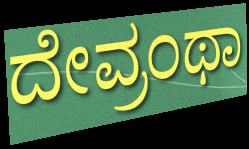
ದೇವ್ರಂಥಾ